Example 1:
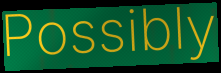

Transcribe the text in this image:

Possibly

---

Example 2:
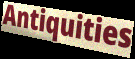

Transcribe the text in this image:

Antiquities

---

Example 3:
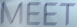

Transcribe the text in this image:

MEET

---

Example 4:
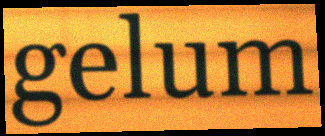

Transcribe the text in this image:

gelum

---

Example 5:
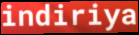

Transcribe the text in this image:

indiriya